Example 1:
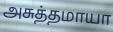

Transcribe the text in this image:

அசுத்தமாயா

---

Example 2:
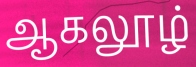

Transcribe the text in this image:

ஆகலூழ்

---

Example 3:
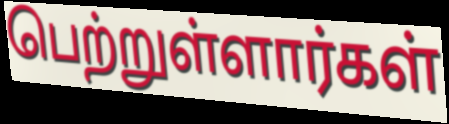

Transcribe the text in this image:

பெற்றுள்ளார்கள்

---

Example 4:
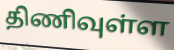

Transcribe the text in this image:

திணிவுள்ள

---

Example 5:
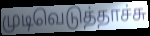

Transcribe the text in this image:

முடிவெடுத்தாச்சு